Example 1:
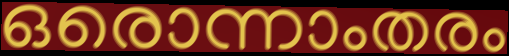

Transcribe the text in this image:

ഒരൊന്നാംതരം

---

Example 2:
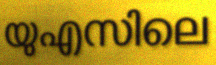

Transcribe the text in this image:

യുഎസിലെ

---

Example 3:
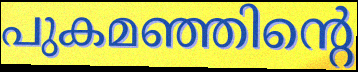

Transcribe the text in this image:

പുകമഞ്ഞിന്റെ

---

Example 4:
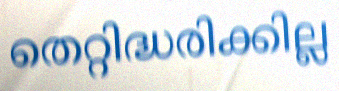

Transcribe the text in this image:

തെറ്റിദ്ധരിക്കില്ല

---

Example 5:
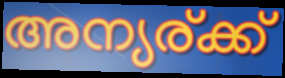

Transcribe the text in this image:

അന്യര്ക്ക്